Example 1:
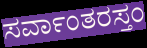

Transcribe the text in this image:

ಸರ್ವಾಂತರಸ್ತಂ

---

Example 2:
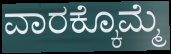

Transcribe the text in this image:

ವಾರಕ್ಕೊಮ್ಮೆ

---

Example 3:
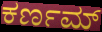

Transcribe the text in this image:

ಕರ್ಣಮ್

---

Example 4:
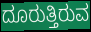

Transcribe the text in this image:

ದೂರುತ್ತಿರುವ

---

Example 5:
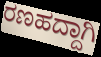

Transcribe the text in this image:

ರಣಹದ್ದಾಗಿ